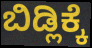
ಬಿಡ್ಲಿಕ್ಕೆ